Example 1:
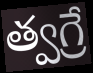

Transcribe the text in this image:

త్వగ్రే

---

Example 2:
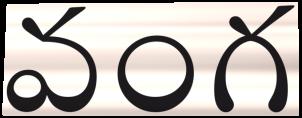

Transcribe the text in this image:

వంగ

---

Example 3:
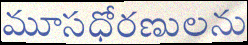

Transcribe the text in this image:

మూసధోరణులను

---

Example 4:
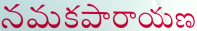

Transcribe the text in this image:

నమకపారాయణ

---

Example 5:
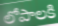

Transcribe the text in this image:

లోపాలకి